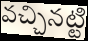
వచ్చినట్టి